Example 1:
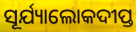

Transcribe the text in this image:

ସୂର୍ଯ୍ୟାଲୋକଦୀପ୍ତ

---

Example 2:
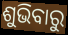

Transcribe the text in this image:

ଶୁଭିବାରୁ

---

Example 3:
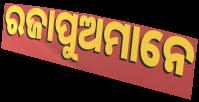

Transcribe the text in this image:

ରଜାପୁଅମାନେ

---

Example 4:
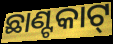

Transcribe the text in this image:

ଛାଣ୍ଟକାଟ୍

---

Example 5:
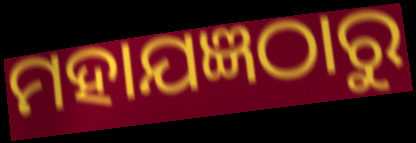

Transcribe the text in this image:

ମହାଯଜ୍ଞଠାରୁ